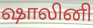
ஷாலினி